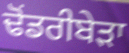
ਢੋਂਡਰੀਬੇੜਾ